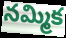
నమ్మిక